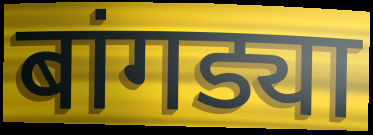
बांगड्या